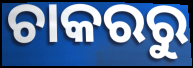
ଚାକରରୁ